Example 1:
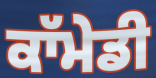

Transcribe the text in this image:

ਕਾੱਮੇਡੀ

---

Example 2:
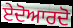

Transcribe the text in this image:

ਏਦੋਆਰਦੋ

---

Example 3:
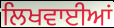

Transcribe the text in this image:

ਲਿਖਵਾਈਆਂ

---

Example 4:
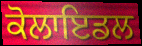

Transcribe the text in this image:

ਕੋਲਾਇਡਲ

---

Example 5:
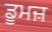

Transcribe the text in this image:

ਡੂਮਜ਼